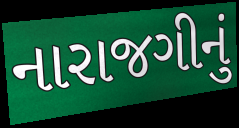
નારાજગીનું